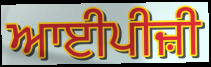
ਆਈਪੀਜ਼ੀ